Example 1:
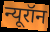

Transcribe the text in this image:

न्यूरॉन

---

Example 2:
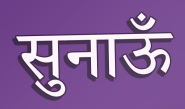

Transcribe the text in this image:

सुनाऊँ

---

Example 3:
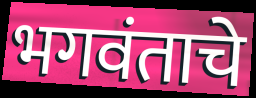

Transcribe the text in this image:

भगवंताचे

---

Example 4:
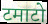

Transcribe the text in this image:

टमाटो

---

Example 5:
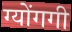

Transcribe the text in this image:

ग्योंगगी